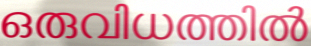
ഒരുവിധത്തിൽ